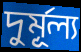
দুর্মূল্য